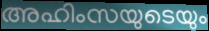
അഹിംസയുടെയും